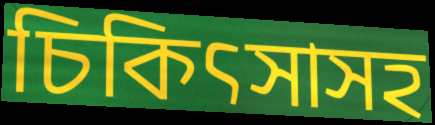
চিকিৎসাসহ